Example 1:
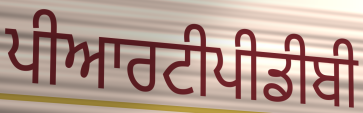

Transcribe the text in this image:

ਪੀਆਰਟੀਪੀਡੀਬੀ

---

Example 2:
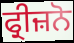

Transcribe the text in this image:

ਫ੍ਰੀਜ਼ਨੋ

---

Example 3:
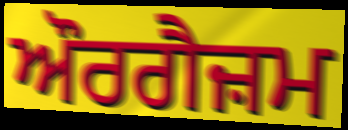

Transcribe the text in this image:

ਔਰਗੈਜ਼ਮ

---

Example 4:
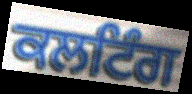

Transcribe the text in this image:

ਕਲਟਿੰਗ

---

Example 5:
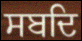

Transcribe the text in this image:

ਸਬਦਿ